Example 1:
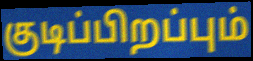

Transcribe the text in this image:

குடிப்பிறப்பும்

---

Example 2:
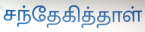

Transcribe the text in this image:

சந்தேகித்தாள்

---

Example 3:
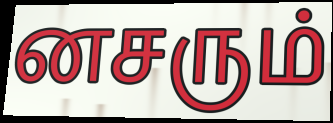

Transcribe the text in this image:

னசரும்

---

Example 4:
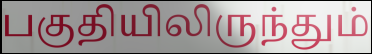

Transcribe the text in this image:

பகுதியிலிருந்தும்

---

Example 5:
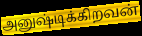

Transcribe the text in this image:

அனுஷ்டிக்கிறவன்